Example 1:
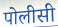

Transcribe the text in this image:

पोलीसी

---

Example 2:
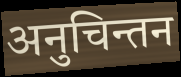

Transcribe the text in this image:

अनुचिन्तन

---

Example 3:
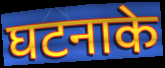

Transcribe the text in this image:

घटनाके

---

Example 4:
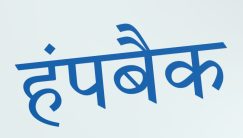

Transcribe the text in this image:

हंपबैक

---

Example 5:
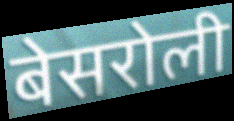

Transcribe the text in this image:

बेसरोली